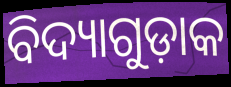
ବିଦ୍ୟାଗୁଡ଼ାକ